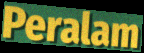
Peralam